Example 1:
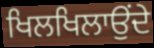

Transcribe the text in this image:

ਖਿਲਖਿਲਾਉਂਦੇ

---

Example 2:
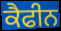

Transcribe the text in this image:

ਕੈਫੀਨ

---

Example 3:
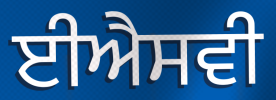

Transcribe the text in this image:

ਈਐਸਵੀ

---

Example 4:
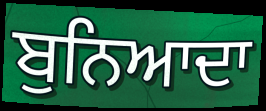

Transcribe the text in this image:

ਬੁਨਿਆਦਾ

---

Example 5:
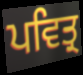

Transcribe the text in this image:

ਪਵਿਤ੍ਰ